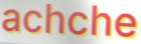
achche